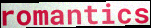
romantics